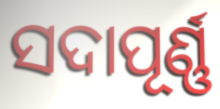
ସଦାପୂର୍ଣ୍ଣ